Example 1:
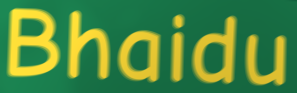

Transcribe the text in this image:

Bhaidu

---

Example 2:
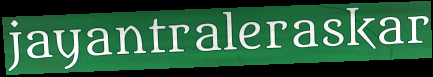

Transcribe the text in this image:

jayantraleraskar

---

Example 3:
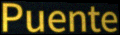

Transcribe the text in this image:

Puente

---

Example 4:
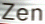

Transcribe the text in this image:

Zen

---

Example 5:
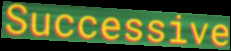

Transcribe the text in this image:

Successive